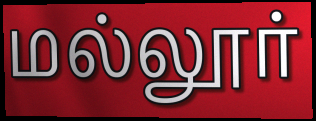
மல்லூர்